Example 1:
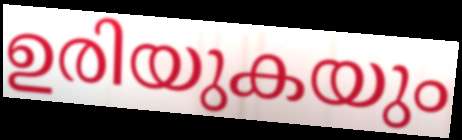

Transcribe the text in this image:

ഉരിയുകയും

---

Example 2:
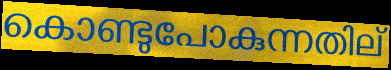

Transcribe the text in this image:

കൊണ്ടുപോകുന്നതില്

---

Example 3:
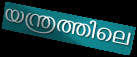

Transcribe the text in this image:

യന്ത്രത്തിലെ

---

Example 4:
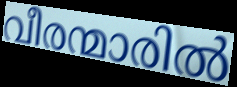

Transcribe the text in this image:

വീരന്മാരിൽ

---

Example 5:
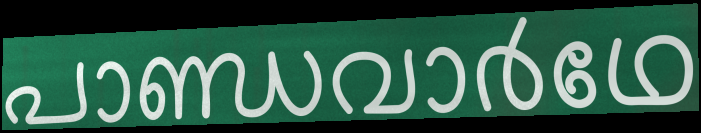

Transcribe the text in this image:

പാണ്ഡവാർഥേ